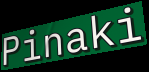
Pinaki